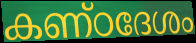
കണ്ഠദേശം